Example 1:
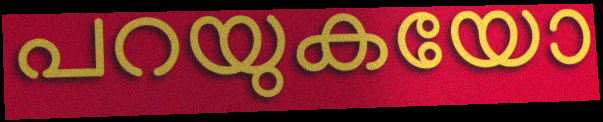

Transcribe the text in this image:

പറയുകയോ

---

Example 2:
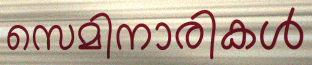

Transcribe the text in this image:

സെമിനാരികൾ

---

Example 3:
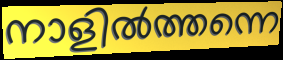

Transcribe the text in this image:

നാളിൽത്തന്നെ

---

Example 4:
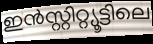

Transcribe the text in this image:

ഇൻസ്റ്റിറ്റ്യൂട്ടിലെ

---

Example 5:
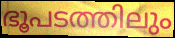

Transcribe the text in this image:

ഭൂപടത്തിലും